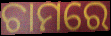
ଚାମରେ